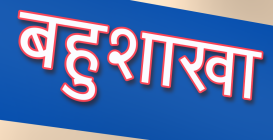
बहुशाखा